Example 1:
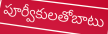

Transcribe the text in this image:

పూర్వీకులతోబాటు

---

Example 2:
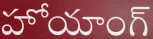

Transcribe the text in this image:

హోయాంగ్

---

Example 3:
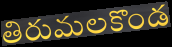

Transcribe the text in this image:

తిరుమలకొండ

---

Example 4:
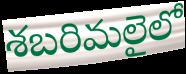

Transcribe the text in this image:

శబరిమలైలో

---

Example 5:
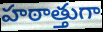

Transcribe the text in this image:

హఠాత్తుగా